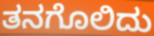
ತನಗೊಲಿದು